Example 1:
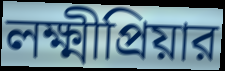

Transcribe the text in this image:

লক্ষ্মীপ্রিয়ার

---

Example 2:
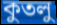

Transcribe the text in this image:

কুতলু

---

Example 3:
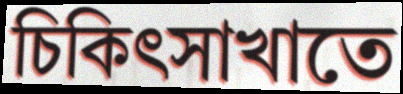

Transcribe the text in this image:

চিকিৎসাখাতে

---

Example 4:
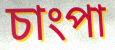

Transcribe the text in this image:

চাংপা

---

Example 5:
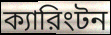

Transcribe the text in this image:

ক্যারিংটন